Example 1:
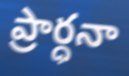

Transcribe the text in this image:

ప్రార్ధనా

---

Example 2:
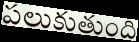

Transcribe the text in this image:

పలుకుతుంది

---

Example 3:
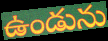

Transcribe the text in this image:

ఉండును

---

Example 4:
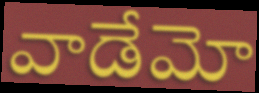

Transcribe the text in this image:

వాడేమో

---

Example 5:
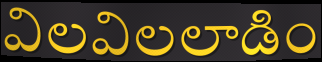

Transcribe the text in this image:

విలవిలలాడిం